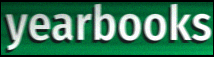
yearbooks